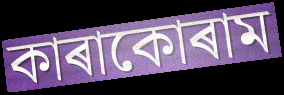
কাৰাকোৰাম